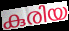
കുരിയ